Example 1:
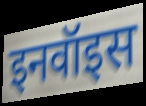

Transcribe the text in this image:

इनवॉइस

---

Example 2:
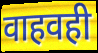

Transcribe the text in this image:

वाहवही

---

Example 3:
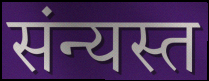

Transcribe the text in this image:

संन्यस्त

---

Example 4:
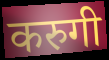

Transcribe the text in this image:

करुगी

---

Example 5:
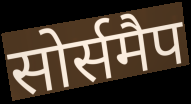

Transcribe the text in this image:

सोर्समैप